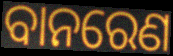
ବାନରେଣ